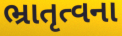
ભ્રાતૃત્વના